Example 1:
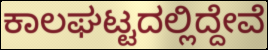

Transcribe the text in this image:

ಕಾಲಘಟ್ಟದಲ್ಲಿದ್ದೇವೆ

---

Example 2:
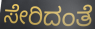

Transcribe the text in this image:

ಸೇರಿದಂತೆ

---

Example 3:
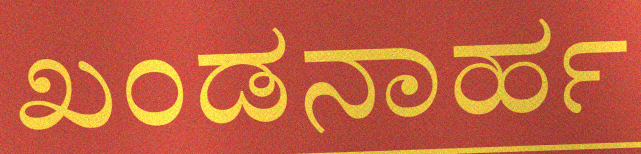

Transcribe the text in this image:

ಖಂಡನಾರ್ಹ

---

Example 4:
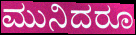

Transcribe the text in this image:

ಮುನಿದರೂ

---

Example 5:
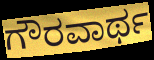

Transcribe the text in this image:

ಗೌರವಾರ್ಥ